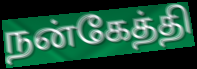
நன்கேத்தி